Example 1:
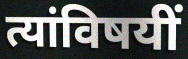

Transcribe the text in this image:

त्यांविषयीं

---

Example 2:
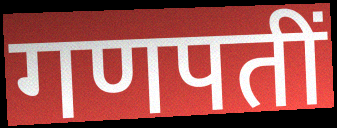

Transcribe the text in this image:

गणपतीं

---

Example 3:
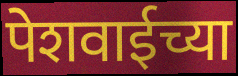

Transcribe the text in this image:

पेशवाईच्या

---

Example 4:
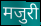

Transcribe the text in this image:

मजुरी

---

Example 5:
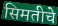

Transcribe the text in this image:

सिमतीचे